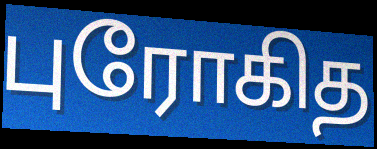
புரோகித